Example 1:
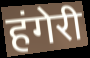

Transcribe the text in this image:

हंगेरी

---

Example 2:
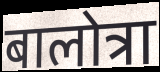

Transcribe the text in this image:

बालोत्रा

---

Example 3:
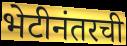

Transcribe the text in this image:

भेटीनंतरची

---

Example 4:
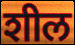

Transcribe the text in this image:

शील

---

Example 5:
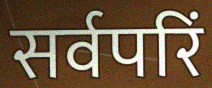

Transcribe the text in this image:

सर्वपरिं